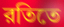
রতিতে